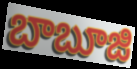
బాబూజి